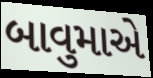
બાવુમાએ